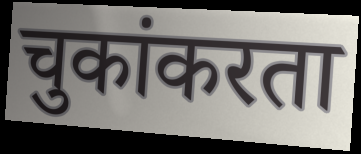
चुकांकरता